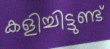
കളിച്ചിട്ടുണ്ട്